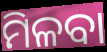
ମିଳବା